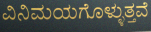
ವಿನಿಮಯಗೊಳ್ಳುತ್ತವೆ